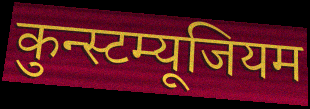
कुन्स्टम्यूजियम